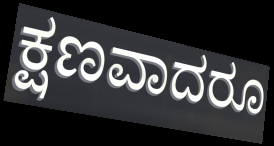
ಕ್ಷಣವಾದರೂ